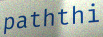
paththi